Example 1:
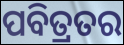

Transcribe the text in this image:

ପବିତ୍ରତର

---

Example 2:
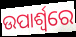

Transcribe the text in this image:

ଉପାର୍ଶ୍ଵରେ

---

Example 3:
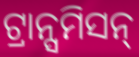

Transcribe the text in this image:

ଟ୍ରାନ୍ସମିସନ୍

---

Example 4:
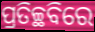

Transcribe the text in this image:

ପ୍ରତିଚ୍ଛବିରେ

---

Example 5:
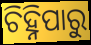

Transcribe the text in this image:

ଚିହ୍ନିପାରୁ